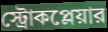
স্ট্রোকপ্লেয়ার